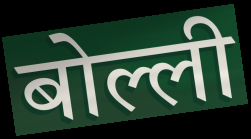
बोल्ली